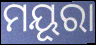
ମୟୂରା